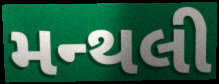
મન્થલી